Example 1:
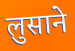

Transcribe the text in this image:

लुसाने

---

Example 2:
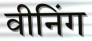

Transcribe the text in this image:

वीनिंग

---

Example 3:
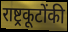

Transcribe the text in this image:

राष्ट्रकूटोंकी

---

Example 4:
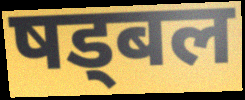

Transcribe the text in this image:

षड्बल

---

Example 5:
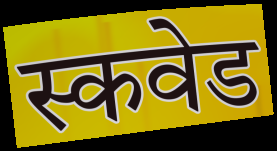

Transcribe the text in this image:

स्कवेड